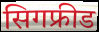
सिगफ्रीड